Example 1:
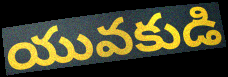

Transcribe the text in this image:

యువకుడి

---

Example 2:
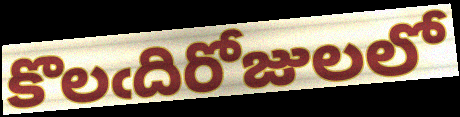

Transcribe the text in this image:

కొలఁదిరోజులలో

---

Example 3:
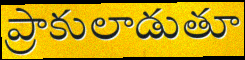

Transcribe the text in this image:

ప్రాకులాడుతూ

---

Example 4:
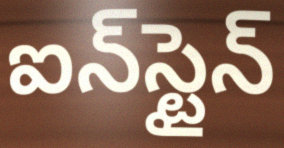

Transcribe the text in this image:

ఐన్‌స్టైన్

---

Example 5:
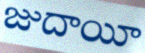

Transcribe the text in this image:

జుదాయీ